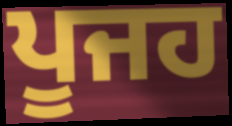
ਪੂਜਹ